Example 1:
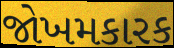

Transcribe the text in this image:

જોખમકારક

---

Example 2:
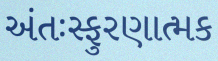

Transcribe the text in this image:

અંતઃસ્ફુરણાત્મક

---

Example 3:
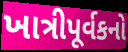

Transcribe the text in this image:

ખાત્રીપૂર્વકનો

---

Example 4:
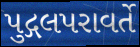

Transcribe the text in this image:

પુદ્ગલપરાવર્તે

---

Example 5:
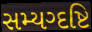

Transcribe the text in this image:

સમ્યગ્દષ્ટિ